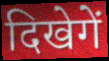
दिखेगें